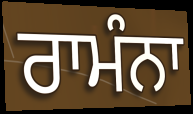
ਰਾਮੰਨਾ